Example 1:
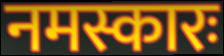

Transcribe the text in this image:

नमस्कारः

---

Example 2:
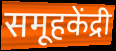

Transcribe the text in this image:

समूहकेंद्री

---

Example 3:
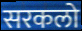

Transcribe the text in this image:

सरकलो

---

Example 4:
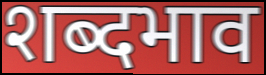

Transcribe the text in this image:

शब्दभाव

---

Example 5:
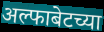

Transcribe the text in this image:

अल्फाबेटच्या